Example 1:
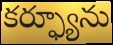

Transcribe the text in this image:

కర్ఫ్యూను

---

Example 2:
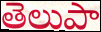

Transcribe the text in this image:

తెలుపా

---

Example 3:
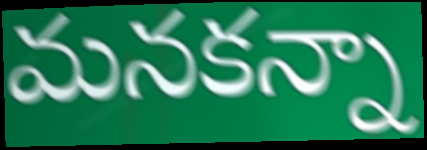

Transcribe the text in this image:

మనకన్నా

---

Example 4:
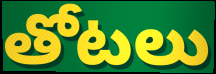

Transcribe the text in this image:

తోటలు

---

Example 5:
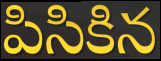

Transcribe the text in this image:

పిసికిన